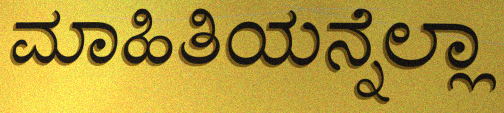
ಮಾಹಿತಿಯನ್ನೆಲ್ಲಾ